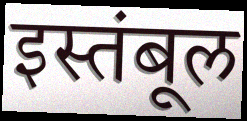
इस्तंबूल